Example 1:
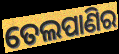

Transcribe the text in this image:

ତେଲପାଣିର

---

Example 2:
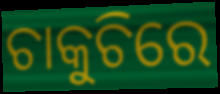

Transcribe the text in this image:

ଚାକୁଚିରେ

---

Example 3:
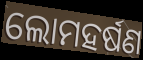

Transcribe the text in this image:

ଲୋମହର୍ଷଣ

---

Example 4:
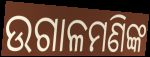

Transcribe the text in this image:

ଉଗାଳମଣିଙ୍କ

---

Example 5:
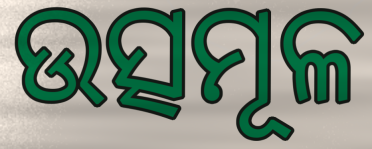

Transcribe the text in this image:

ଉତ୍ସମୂଳ